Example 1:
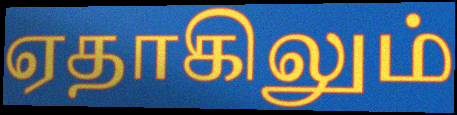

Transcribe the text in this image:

ஏதாகிலும்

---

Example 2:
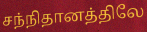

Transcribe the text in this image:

சந்நிதானத்திலே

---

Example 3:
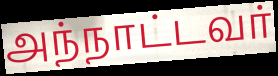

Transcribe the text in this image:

அந்நாட்டவர்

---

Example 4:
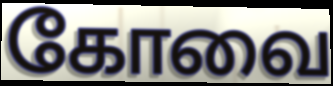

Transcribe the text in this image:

கோவை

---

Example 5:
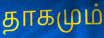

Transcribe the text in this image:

தாகமும்